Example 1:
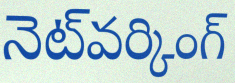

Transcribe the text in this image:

నెట్‌వర్కింగ్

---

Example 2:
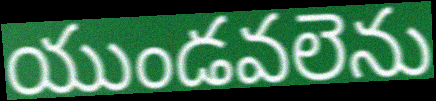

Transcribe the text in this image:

యుండవలెను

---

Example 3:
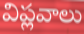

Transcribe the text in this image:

విప్లవాలు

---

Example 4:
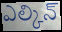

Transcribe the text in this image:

ఎల్కిన్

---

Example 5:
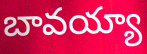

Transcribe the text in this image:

బావయ్యా